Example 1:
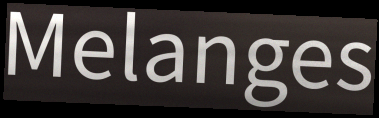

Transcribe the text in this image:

Melanges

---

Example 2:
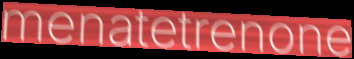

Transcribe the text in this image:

menatetrenone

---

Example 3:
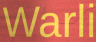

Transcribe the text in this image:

Warli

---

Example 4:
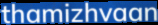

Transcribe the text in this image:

thamizhvaan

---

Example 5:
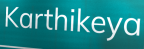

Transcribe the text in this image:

Karthikeya